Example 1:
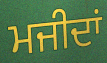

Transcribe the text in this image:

ਮਜੀਦਾਂ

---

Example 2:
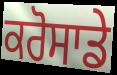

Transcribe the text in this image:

ਕਰੋਸਾਡੇ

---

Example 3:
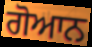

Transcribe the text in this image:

ਗੋਆਨ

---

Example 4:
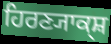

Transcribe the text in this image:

ਹਿਰਣ੍ਯਾਕ੍ਸ਼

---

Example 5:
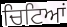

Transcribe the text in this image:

ਚਿਟਿਆਂ